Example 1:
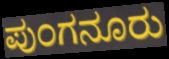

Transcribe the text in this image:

ಪುಂಗನೂರು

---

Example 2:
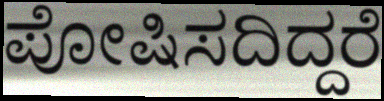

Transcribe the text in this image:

ಪೋಷಿಸದಿದ್ದರೆ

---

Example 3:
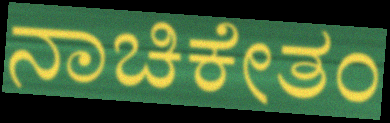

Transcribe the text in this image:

ನಾಚಿಕೇತಂ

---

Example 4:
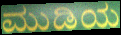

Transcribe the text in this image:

ಮುಡಿಯ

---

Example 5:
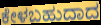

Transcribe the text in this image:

ಕೇಳಬಹುದಾದ